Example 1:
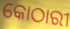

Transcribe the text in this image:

କୋଠାରୀ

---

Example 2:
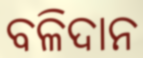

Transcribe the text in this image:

ବଳିଦାନ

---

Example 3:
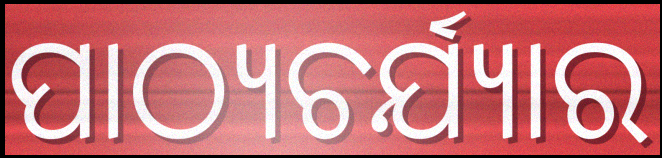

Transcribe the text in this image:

ପାଠ୍ୟଚର୍ଯ୍ୟାର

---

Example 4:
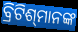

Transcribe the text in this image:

ବ୍ରିଟିଶ୍‌ମାନଙ୍କ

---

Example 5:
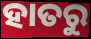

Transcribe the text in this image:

ହାତରୁ